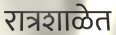
रात्रशाळेत